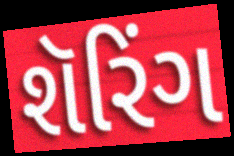
શૅરિંગ